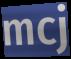
mcj